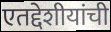
एतद्देशीयांची